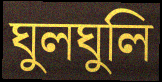
ঘুলঘুলি